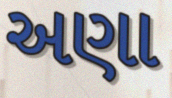
અણા